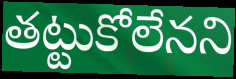
తట్టుకోలేనని